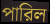
পারিল